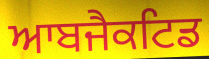
ਆਬਜੈਕਟਿਡ